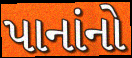
પાનાંનો